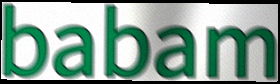
babam